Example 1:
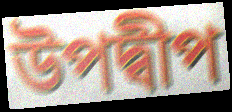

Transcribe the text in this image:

উপদ্বীপ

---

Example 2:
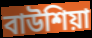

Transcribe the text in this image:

বাউশিয়া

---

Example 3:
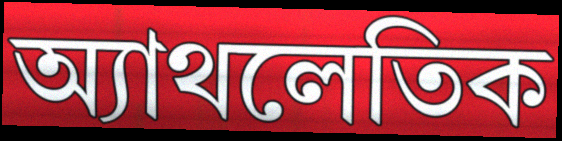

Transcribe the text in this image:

অ্যাথলেতিক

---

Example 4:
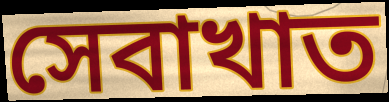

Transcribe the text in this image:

সেবাখাত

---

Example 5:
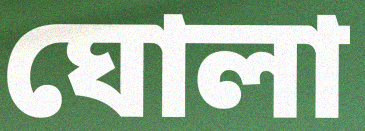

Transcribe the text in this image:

ঘোলা